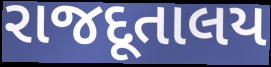
રાજદૂતાલય